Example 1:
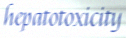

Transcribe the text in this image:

hepatotoxicity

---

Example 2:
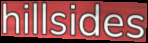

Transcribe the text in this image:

hillsides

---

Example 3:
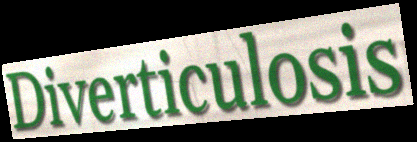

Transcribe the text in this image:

Diverticulosis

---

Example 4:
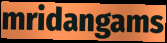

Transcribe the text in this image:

mridangams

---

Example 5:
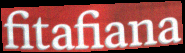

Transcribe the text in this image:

fitafiana